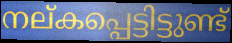
നല്കപ്പെട്ടിട്ടുണ്ട്